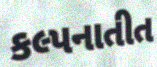
કલ્પનાતીત